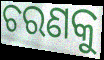
ଚରଣକୁ